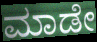
ಮಾಡೇ